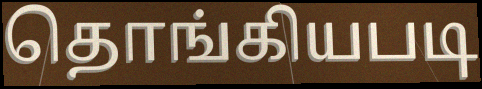
தொங்கியபடி